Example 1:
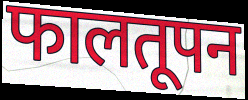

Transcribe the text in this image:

फालतूपन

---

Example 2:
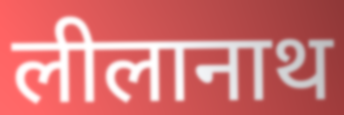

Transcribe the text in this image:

लीलानाथ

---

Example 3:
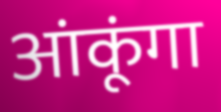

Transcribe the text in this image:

आंकूंगा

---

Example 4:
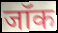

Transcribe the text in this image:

जॉक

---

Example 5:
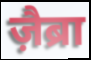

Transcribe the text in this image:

ज़ैब्रा